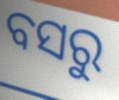
ବସରୁ